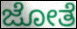
ಜೋತೆ